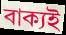
বাক্যই